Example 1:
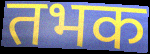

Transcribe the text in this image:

तभक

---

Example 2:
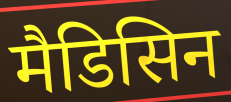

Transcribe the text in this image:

मैडिसिन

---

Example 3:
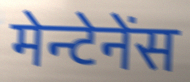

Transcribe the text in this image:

मेन्टेनेंस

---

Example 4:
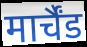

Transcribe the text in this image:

मार्चैंड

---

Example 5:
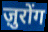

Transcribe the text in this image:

ज़ुरोंग